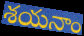
శయనాం